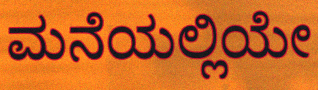
ಮನೆಯಲ್ಲಿಯೇ